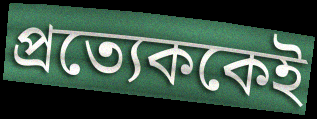
প্রত্যেককেই